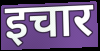
इचार